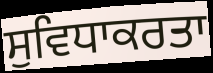
ਸੁਵਿਧਾਕਰਤਾ